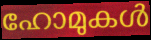
ഹോമുകൾ